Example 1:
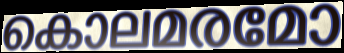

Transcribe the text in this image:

കൊലമരമോ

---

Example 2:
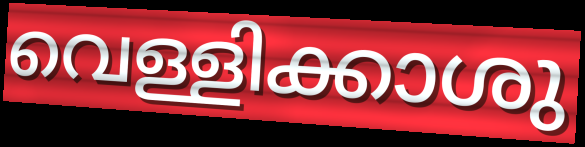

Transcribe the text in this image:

വെള്ളിക്കാശു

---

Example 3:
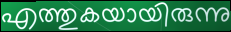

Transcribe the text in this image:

എത്തുകയായിരുന്നു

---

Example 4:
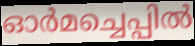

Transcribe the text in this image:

ഓർമച്ചെപ്പിൽ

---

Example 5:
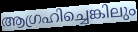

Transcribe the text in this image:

ആഗ്രഹിച്ചെങ്കിലും